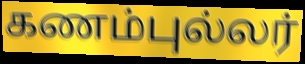
கணம்புல்லர்